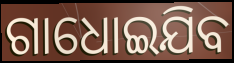
ଗାଧୋଇଯିବ